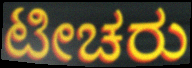
ಟೀಚರು